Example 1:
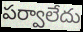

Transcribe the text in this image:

పర్వాలేదు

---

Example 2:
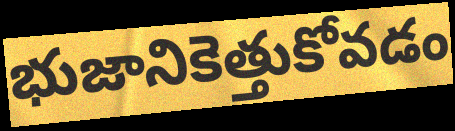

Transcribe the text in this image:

భుజానికెత్తుకోవడం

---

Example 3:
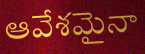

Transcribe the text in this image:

ఆవేశమైనా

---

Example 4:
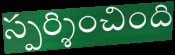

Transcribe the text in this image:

స్పర్శించింది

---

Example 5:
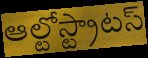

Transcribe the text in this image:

ఆల్టోస్ట్రాటస్